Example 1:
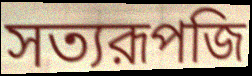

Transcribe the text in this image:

সত্যরূপজি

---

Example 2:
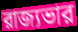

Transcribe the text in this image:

রাজ্যভার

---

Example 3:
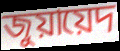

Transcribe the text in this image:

জুয়ায়েদ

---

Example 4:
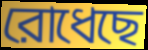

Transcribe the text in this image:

রোধেছে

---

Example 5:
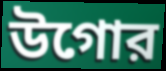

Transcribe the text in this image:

উগোর